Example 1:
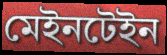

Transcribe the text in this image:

মেইনটেইন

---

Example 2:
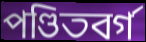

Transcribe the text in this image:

পণ্ডিতবর্গ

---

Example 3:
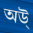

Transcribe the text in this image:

অউ্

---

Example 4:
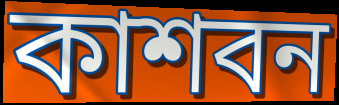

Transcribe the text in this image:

কাশবন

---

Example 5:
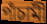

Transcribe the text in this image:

পাঁচামী